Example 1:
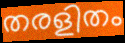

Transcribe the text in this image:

തരളിതം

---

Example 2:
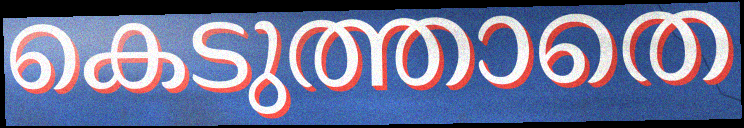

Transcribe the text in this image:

കെടുത്താതെ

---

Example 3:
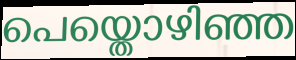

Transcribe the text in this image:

പെയ്തൊഴിഞ്ഞ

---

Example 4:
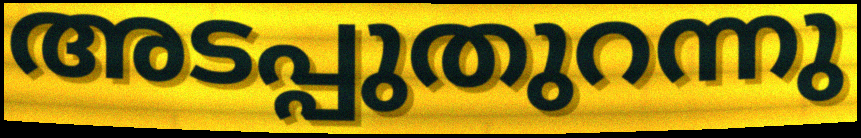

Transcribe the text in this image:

അടപ്പുതുറന്നു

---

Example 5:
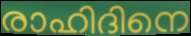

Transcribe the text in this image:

രാഹിദിനെ